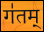
ग॑तम्